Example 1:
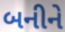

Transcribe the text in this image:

બનીને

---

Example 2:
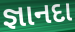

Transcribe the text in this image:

જ્ઞાનદા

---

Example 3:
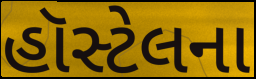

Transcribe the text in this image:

હૉસ્ટેલના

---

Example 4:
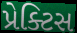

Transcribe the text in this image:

પ્રેક્ટિસ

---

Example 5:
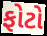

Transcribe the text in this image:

ફોટો